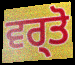
ਵਰ੍ਤੋ